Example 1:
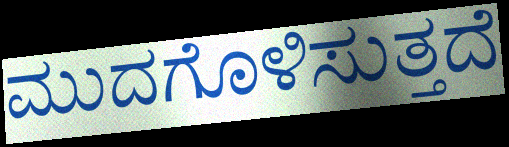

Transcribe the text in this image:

ಮುದಗೊಳಿಸುತ್ತದೆ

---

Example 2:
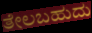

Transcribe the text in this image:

ತೇಲಬಹುದು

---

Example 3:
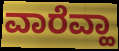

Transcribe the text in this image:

ವಾರೆವ್ಹಾ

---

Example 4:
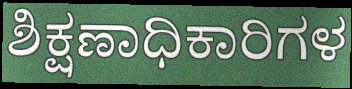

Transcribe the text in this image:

ಶಿಕ್ಷಣಾಧಿಕಾರಿಗಳ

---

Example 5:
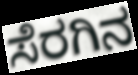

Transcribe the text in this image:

ಸೆರಗಿನ